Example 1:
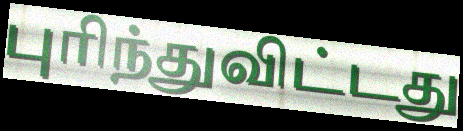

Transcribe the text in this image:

புரிந்துவிட்டது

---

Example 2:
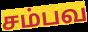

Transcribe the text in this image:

சம்பவ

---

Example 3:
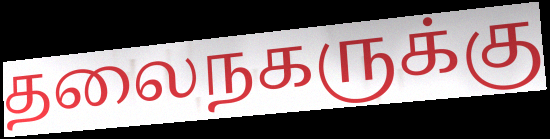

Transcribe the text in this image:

தலைநகருக்கு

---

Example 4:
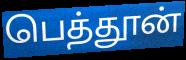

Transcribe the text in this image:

பெத்தூன்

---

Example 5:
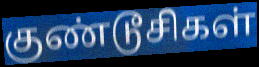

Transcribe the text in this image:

குண்டூசிகள்